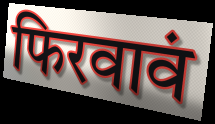
फिरवावं